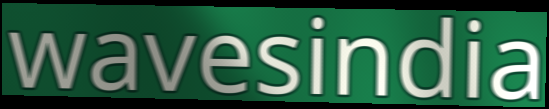
wavesindia